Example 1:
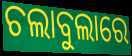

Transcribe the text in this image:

ଚଲାବୁଲାରେ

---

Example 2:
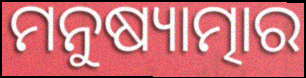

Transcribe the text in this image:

ମନୁଷ୍ୟାତ୍ମାର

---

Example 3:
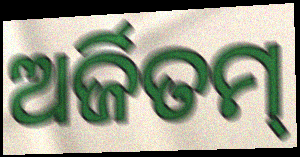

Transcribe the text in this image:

ଅର୍ଜିତମ୍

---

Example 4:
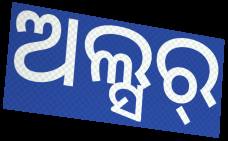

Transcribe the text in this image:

ଅଲ୍ସର୍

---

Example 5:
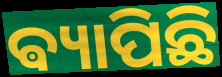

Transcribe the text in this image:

ଵ୍ୟାପିଛି